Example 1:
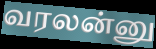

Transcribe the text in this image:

வரலன்னு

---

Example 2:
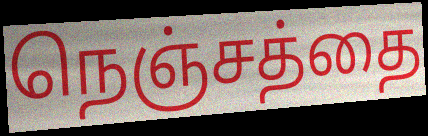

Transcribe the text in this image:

நெஞ்சத்தை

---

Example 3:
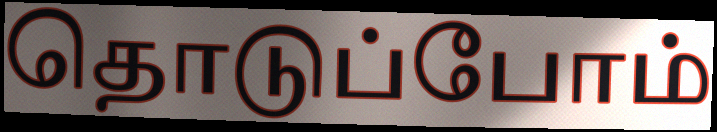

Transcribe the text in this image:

தொடுப்போம்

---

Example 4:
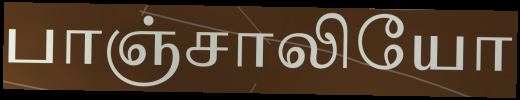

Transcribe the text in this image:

பாஞ்சாலியோ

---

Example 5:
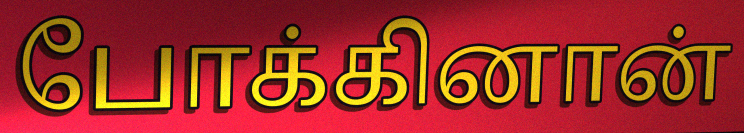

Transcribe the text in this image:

போக்கினான்